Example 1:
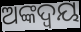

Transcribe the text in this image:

ଅଙ୍କଦ୍ବୟ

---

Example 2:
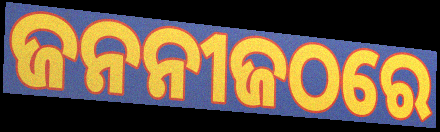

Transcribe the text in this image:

ଜନନୀଜଠରେ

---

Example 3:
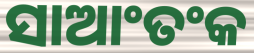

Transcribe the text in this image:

ସାଆଂତଂକ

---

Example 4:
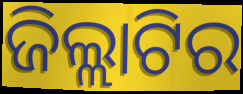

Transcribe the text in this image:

ଜିଲ୍ଲାଟିର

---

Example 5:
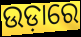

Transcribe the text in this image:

ଉଡ଼ାରେ